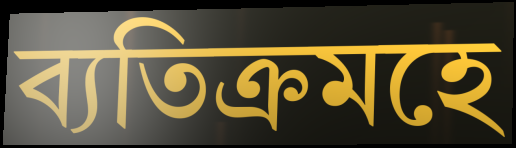
ব্যতিক্ৰমহে